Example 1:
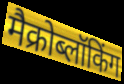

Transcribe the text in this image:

मैक्रोब्लॉकिंग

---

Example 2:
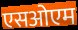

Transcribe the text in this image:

एसओएम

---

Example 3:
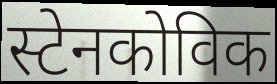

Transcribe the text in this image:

स्टेनकोविक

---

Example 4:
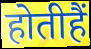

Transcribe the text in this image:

होतीहैं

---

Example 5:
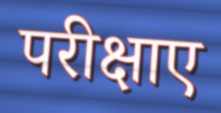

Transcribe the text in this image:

परीक्षाए